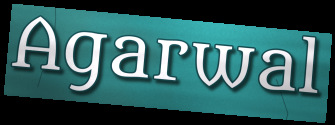
Agarwal